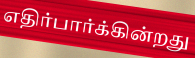
எதிர்பார்க்கின்றது